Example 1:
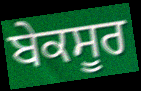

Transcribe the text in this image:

ਬੇਕਸੂਰ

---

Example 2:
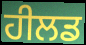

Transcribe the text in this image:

ਹੀਲਡ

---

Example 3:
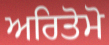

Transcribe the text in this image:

ਅਰਿਤੋਮੋ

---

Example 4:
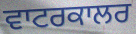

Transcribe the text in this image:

ਵਾਟਰਕਾਲਰ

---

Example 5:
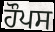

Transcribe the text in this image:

ਹੌਪਸ